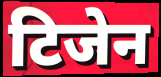
टिजेन